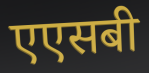
एएसबी